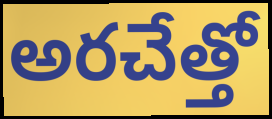
అరచేత్తో